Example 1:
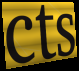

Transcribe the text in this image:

cts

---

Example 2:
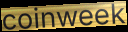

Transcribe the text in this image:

coinweek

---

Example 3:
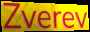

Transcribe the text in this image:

Zverev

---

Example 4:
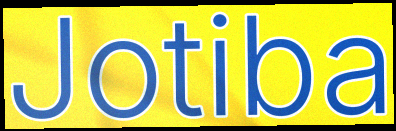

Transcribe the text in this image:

Jotiba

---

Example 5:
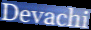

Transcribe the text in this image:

Devachi